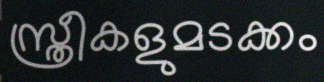
സ്ത്രീകളുമടക്കം